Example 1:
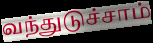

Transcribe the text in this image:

வந்துடுச்சாம்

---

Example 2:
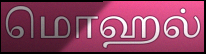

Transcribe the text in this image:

மொஹல்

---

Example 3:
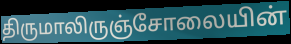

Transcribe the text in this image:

திருமாலிருஞ்சோலையின்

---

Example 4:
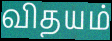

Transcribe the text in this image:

விதயம்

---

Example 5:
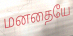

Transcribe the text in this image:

மனதையே